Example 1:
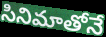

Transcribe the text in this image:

సినిమాతోనే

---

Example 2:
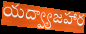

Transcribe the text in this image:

యద్వ్యాజహార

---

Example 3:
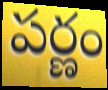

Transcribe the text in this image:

పర్ణం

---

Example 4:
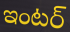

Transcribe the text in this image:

ఇంటర్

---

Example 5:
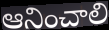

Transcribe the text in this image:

ఆనించాలి